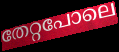
തേറ്റപോലെ